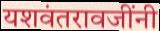
यशवंतरावजींनी